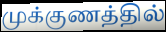
முக்குணத்தில்